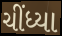
ચીંધ્યા